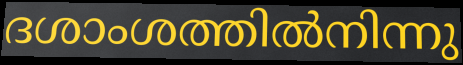
ദശാംശത്തിൽനിന്നു